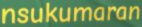
nsukumaran